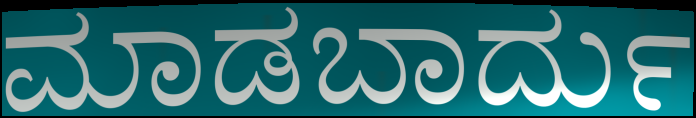
ಮಾಡಬಾರ್ದು